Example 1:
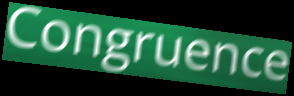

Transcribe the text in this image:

Congruence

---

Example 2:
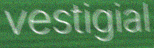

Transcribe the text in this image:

vestigial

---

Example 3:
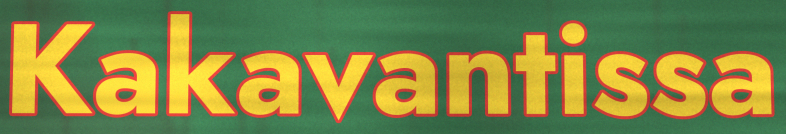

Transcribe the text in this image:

Kakavantissa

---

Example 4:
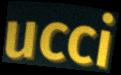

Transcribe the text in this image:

ucci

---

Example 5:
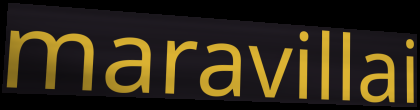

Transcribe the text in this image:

maravillai